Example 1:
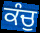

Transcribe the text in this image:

ਕੰਚੁ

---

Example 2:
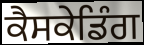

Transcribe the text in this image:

ਕੈਸਕੇਡਿੰਗ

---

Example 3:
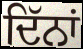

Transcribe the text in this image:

ਦਿੱਨਾਂ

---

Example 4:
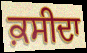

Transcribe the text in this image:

ਕ਼ਸੀਦਾ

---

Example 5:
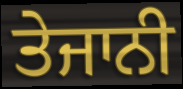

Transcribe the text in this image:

ਤੇਜਾਨੀ